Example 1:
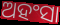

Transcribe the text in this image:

ଅହଂସା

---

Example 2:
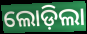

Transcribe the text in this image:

ଲୋଡ଼ିଲା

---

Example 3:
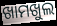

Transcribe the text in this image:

ଖାମଖୁଲ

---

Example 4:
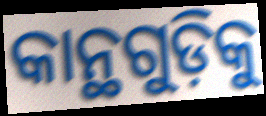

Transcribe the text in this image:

କାନ୍ଥଗୁଡ଼ିକୁ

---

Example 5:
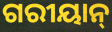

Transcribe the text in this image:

ଗରୀୟାନ୍